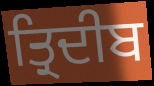
ਤ੍ਰਿਦੀਬ